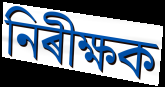
নিৰীক্ষক